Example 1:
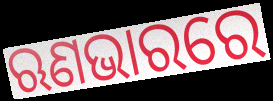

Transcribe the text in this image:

ଋଣଭାରରେ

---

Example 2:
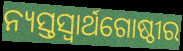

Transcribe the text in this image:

ନ୍ୟସ୍ତସ୍ୱାର୍ଥଗୋଷ୍ଠୀର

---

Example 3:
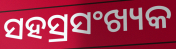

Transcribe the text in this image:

ସହସ୍ରସଂଖ୍ୟକ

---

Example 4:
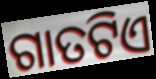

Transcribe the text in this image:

ଗାତଟିଏ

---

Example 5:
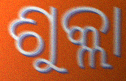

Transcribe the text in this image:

ଶୁକ୍ଲା